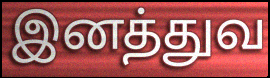
இனத்துவ